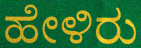
ಹೇಳಿರು